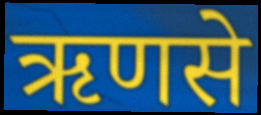
ऋणसे